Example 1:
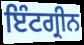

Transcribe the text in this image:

ਇੰਟਗ੍ਰੀਨ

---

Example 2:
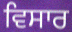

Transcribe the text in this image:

ਵਿਸਾਰ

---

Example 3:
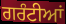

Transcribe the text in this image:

ਗਰੰਟੀਆਂ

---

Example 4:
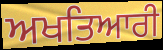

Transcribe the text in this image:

ਅਖਤਿਆਰੀ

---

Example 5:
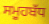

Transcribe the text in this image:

ਸਮੂਹਬੱਧ